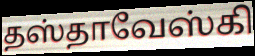
தஸ்தாவேஸ்கி